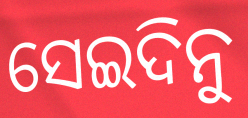
ସେଇଦିନୁ